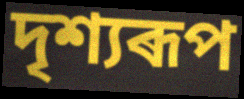
দৃশ্যৰূপ